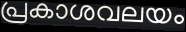
പ്രകാശവലയം